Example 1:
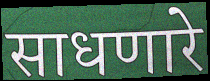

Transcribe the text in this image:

साधणारे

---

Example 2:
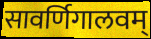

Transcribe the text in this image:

सावर्णिगालवम्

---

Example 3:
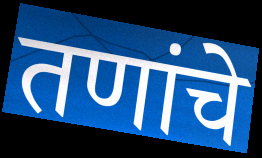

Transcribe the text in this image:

तणांचे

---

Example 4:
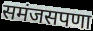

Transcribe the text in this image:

समंजसपणा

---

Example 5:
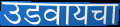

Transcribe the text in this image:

उडवायचा